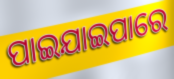
ପାଇଯାଇପାରେ